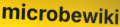
microbewiki